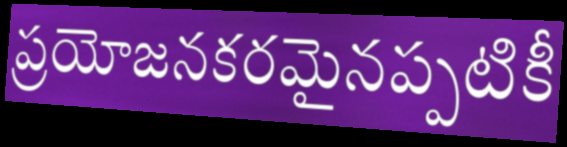
ప్రయోజనకరమైనప్పటికీ